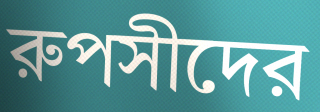
রুপসীদের